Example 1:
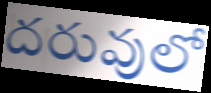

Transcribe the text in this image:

దరువులో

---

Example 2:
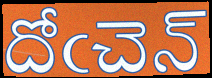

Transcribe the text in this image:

దోఁచెన్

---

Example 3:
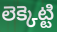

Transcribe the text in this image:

లెక్కెట్టి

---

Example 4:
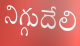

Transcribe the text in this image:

నిగ్గుదేలి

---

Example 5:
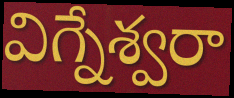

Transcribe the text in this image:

విగ్నేశ్వరా